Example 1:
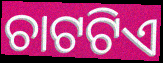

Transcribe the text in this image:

ଚାଟଟିଏ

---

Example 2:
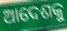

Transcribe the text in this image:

ଆଦେଶକୁ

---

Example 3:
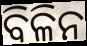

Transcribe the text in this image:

ବିଳିନ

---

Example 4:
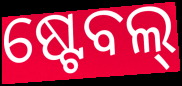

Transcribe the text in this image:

ଷ୍ଟେବଲ୍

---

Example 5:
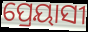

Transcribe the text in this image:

ପ୍ରେୟାସୀ